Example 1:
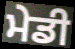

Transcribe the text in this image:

ਮੇਡੀ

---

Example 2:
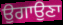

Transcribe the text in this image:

ਉਗਾਉਣਾ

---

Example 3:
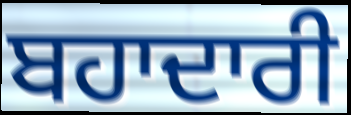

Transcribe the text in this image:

ਬਹਾਦਾਰੀ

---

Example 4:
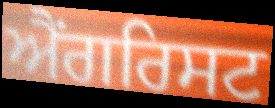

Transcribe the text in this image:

ਐਂਗਰਿਸਟ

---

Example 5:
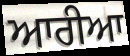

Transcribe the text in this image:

ਆਰੀਆ